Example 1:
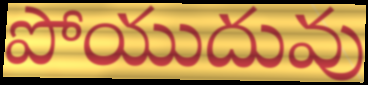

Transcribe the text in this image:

పోయుదువు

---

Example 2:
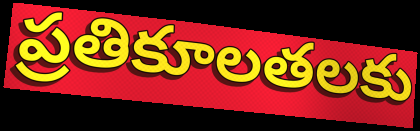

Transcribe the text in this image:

ప్రతికూలతలకు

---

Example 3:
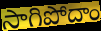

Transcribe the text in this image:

సాగిపోదాం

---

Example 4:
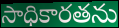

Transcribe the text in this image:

సాధికారతను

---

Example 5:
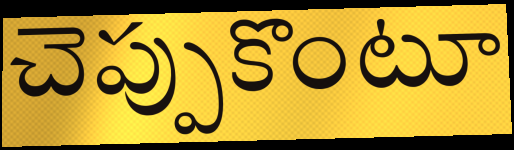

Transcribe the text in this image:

చెప్పుకొంటూ